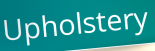
Upholstery